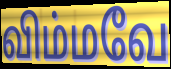
விம்மவே